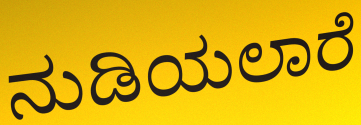
ನುಡಿಯಲಾರೆ